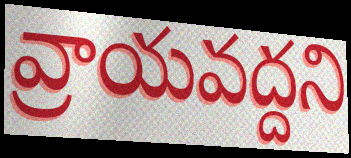
వ్రాయవద్దని